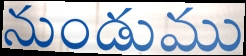
నుండుము